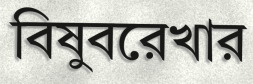
বিষুবরেখার